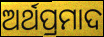
ଅର୍ଥପ୍ରମାଦ